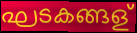
ഘടകങ്ങള്